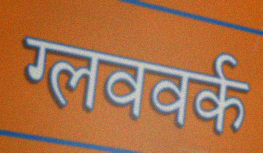
ग्लववर्क